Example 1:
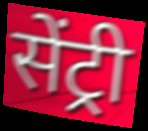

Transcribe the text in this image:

सेंट्री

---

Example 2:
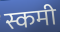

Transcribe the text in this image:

स्कमी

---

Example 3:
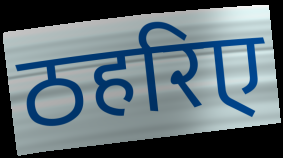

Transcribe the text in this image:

ठहरिए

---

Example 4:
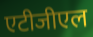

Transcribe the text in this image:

एटीजीएल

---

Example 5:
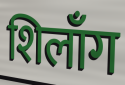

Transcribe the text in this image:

शिलाँग